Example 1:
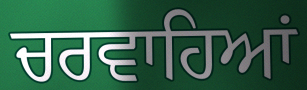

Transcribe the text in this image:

ਚਰਵਾਹਿਆਂ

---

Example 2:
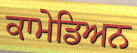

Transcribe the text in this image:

ਕਾਮੇਡਿਅਨ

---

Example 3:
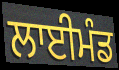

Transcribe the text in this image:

ਲਾਈਮੰਡ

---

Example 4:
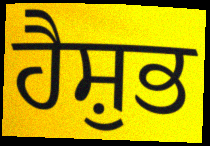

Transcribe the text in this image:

ਹੈਸ਼ੁਭ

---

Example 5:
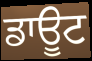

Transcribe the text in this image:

ਡਾਊਟ